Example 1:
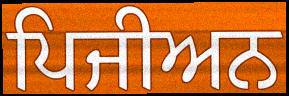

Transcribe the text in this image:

ਪਿਜੀਅਨ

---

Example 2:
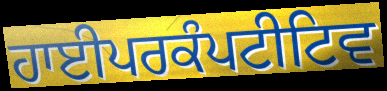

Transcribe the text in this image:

ਹਾਈਪਰਕੰਪਟੀਟਿਵ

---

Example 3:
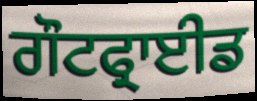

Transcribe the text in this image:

ਗੌਟਫ੍ਰਾਈਡ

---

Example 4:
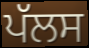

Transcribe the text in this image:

ਪੱਲਸ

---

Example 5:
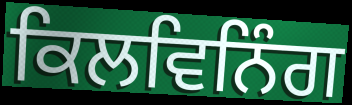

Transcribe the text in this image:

ਕਿਲਵਿਨਿੰਗ